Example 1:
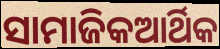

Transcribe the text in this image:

ସାମାଜିକଆର୍ଥିକ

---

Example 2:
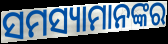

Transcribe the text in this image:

ସମସ୍ୟାମାନଙ୍କର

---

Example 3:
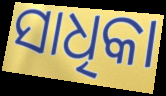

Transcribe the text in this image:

ସାଧିକା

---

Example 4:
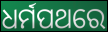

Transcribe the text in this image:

ଧର୍ମପଥରେ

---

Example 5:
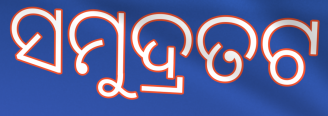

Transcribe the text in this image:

ସମୁଦ୍ରତଟ